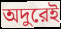
অদুরেই